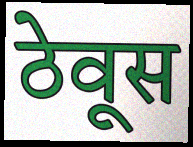
ठेवूस